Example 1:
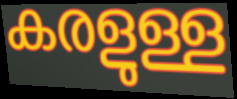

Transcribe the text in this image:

കരളുള്ള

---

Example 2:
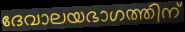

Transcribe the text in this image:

ദേവാലയഭാഗത്തിന്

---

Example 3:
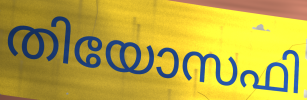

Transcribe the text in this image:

തിയോസഫി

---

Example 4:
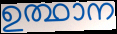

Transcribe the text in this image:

ഉത്ഥാന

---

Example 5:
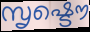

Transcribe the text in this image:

സൃഷ്ടൌ